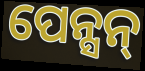
ପେନ୍ସନ୍